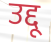
उद्दू